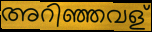
അറിഞ്ഞവള്